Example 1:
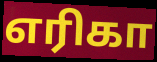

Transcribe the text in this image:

எரிகா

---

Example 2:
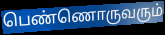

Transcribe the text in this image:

பெண்ணொருவரும்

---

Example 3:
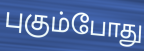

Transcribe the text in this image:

புகும்போது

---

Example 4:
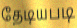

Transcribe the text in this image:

தேடியபடி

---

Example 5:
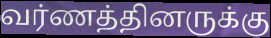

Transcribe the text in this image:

வர்ணத்தினருக்கு